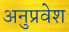
अनुप्रवेश